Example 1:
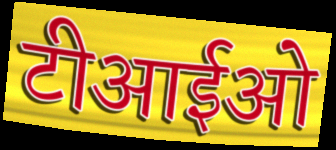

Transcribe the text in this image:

टीआईओ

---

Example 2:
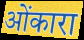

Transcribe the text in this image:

ओंकारा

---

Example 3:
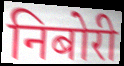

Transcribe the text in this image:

निबोरी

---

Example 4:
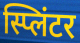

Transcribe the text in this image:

स्प्लिंटर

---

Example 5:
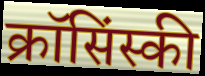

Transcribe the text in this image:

क्रॉसिंस्की